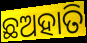
ଛଅହାତି